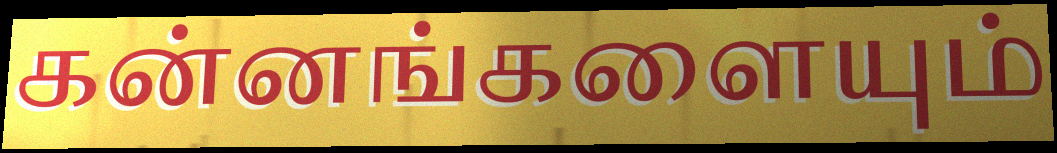
கன்னங்களையும்